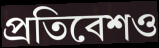
প্রতিবেশও